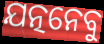
ଯତ୍ନନେବୁ